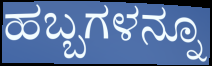
ಹಬ್ಬಗಳನ್ನೂ